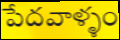
పేదవాళ్ళం